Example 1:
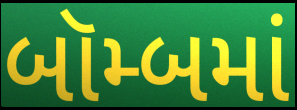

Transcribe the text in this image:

બૉમ્બમાં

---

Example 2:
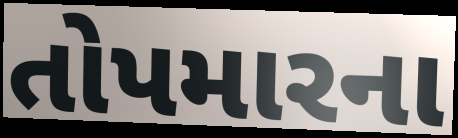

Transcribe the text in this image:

તોપમારના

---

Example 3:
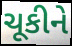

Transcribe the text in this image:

ચૂકીને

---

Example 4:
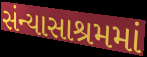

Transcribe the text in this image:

સંન્યાસાશ્રમમાં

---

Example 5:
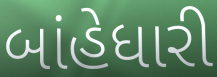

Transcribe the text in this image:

બાંહેધારી